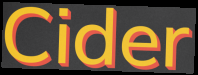
Cider